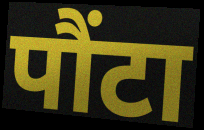
पौंटा